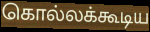
கொல்லக்கூடிய